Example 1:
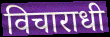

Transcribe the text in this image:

विचाराधी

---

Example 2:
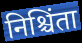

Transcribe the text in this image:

निश्चिंता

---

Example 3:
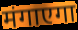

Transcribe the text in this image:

मंगाएगा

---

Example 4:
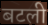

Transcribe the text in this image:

बटली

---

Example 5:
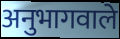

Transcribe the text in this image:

अनुभागवाले